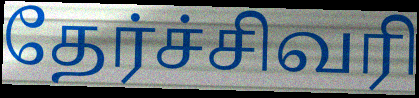
தேர்ச்சிவரி